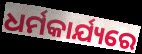
ଧର୍ମକାର୍ଯ୍ୟରେ